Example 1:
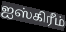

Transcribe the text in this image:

ஐஸ்கிரீம்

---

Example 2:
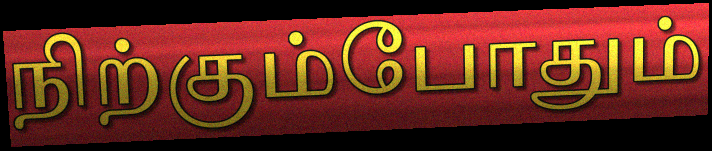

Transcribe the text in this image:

நிற்கும்போதும்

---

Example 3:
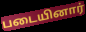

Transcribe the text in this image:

படையினார்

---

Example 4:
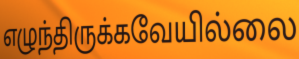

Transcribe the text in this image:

எழுந்திருக்கவேயில்லை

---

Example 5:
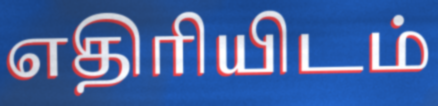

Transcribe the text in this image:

எதிரியிடம்